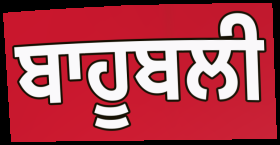
ਬਾਹੂਬਲੀ